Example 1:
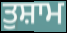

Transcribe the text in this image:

ਤੁਸ਼ਾਮ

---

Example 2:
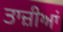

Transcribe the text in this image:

ਤਾਜ਼ੀਆਂ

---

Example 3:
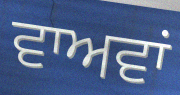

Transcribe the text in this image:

ਵਾਅਵਾਂ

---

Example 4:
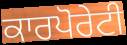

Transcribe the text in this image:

ਕਾਰਪੋਰੇਟੀ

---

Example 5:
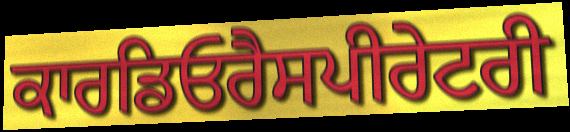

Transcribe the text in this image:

ਕਾਰਡਿਓਰੈਸਪੀਰੇਟਰੀ